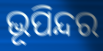
ଭୂପିନ୍ଦର